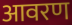
आवरण